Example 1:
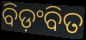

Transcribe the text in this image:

ବିଡ଼ଂବିତ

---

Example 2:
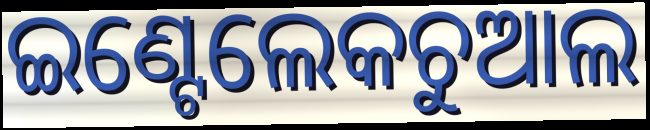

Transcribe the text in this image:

ଇଣ୍ଟେଲେକଚୁଆଲ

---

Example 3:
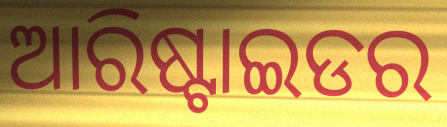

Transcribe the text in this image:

ଆରିଷ୍ଟାଇଡର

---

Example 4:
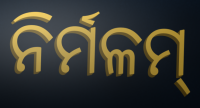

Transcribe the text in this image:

ନିର୍ମଳମ୍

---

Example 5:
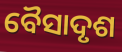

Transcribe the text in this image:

ବୈସାଦୃଶ